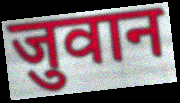
जुवान